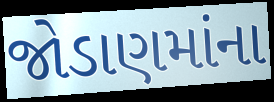
જોડાણમાંના